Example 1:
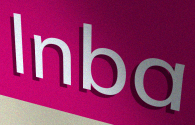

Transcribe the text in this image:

Inba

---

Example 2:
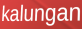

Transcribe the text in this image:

kalungan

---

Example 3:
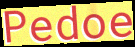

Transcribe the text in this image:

Pedoe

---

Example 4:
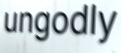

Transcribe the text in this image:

ungodly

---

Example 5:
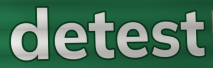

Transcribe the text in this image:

detest